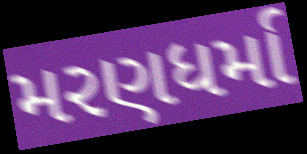
મરણધર્મા